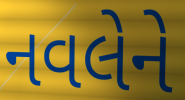
નવલેને